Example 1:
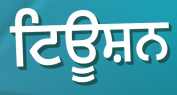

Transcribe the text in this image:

ਟਿਊਸ਼ਨ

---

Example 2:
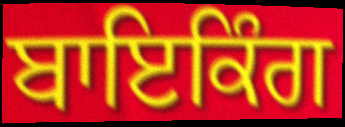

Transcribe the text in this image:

ਬਾਇਕਿੰਗ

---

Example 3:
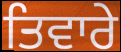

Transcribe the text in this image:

ਤਿਵਾਰੇ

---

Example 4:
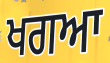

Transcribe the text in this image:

ਖਗਆ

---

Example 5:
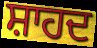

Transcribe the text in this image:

ਸ਼ਾਹਦ